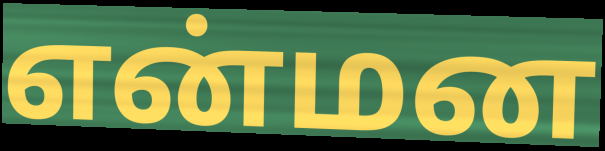
என்மன